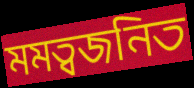
মমত্বজনিত